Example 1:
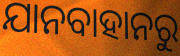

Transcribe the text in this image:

ଯାନବାହାନରୁ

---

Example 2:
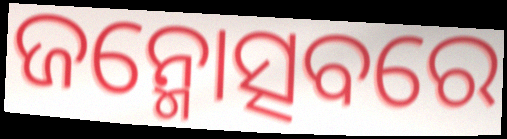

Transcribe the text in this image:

ଜନ୍ମୋତ୍ସବରେ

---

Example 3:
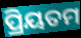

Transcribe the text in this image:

ପ୍ରିୟତମ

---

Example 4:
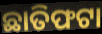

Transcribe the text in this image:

ଛାତିଫଟା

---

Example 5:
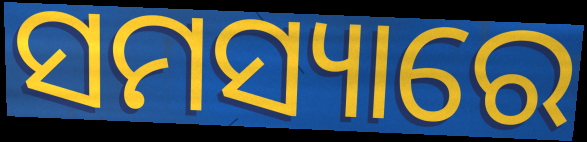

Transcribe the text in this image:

ସମସ୍ୟାରେ